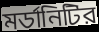
মর্ডানিটির